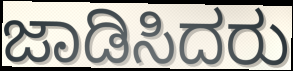
ಜಾಡಿಸಿದರು